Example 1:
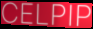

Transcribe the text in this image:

CELPIP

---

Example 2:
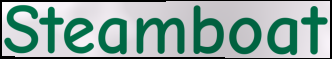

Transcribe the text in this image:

Steamboat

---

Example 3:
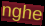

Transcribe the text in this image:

nghe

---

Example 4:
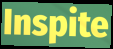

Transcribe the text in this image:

Inspite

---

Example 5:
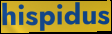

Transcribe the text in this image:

hispidus